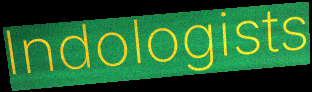
Indologists